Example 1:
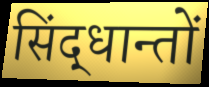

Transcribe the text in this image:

सिंद्धान्तों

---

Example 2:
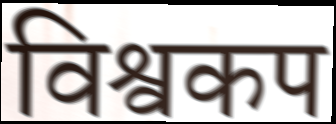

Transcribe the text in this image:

विश्वकप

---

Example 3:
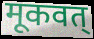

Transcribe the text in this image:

मूकवत्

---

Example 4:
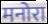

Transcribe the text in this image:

मनोरा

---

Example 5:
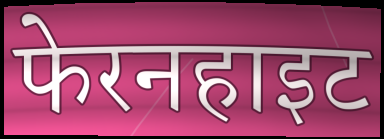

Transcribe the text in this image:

फेरनहाइट